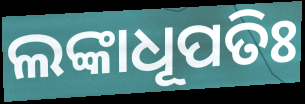
ଲଙ୍କାଧୂପତିଃ